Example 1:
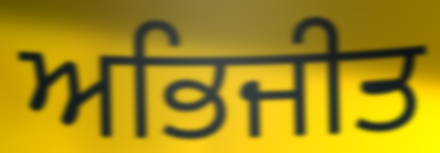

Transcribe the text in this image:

ਅਭਿਜੀਤ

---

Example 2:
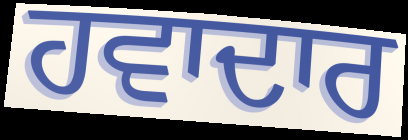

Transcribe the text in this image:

ਹਵਾਦਾਰ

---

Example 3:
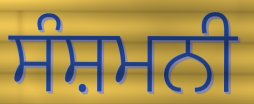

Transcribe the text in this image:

ਸੰਸ਼ਮਨੀ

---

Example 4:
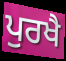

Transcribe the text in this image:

ਪੁਰਖੈ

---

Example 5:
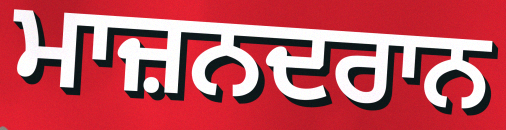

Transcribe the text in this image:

ਮਾਜ਼ਨਦਰਾਨ